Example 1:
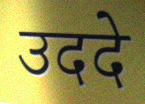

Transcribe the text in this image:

उददे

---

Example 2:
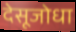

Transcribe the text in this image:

देसूजोधा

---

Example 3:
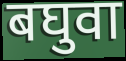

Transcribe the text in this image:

बघुवा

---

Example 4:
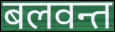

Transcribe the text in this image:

बलवन्‍त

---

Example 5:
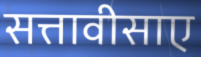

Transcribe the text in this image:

सत्तावीसाए